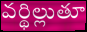
వర్థిల్లుతూ